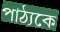
পাঠ্যকে